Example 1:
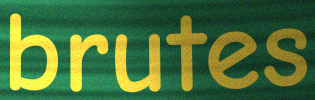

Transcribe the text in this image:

brutes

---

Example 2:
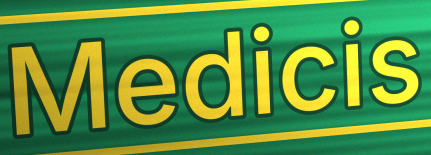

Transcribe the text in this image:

Medicis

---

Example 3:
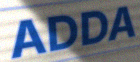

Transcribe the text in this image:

ADDA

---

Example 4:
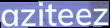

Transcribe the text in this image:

aziteez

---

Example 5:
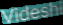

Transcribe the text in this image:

Videshi